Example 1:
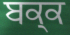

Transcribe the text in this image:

ਬਕ੍ਕ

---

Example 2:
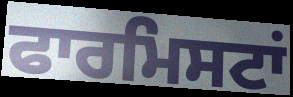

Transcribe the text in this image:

ਫਾਰਮਿਸਟਾਂ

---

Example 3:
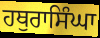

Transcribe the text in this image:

ਹਥੁਰਾਸਿੰਘਾ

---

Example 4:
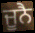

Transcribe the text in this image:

ਜੂਨੈ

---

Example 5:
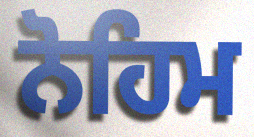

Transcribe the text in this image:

ਨੋਹਿਮ